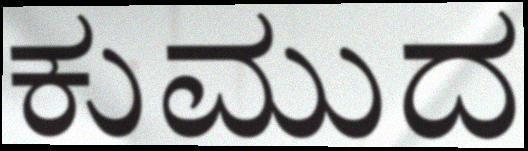
ಕುಮುದ